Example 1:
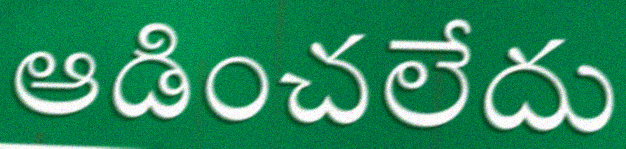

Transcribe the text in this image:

ఆడించలేదు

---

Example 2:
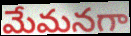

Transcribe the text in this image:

మేమనగా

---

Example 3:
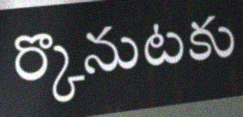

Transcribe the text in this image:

ర్కొనుటకు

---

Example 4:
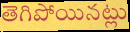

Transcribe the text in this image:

తెగిపోయినట్లు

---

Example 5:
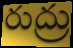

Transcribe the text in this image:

రుద్రు